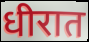
धीरात